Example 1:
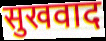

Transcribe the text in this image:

सुखवाद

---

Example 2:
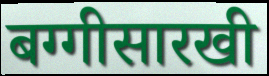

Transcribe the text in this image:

बग्गीसारखी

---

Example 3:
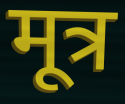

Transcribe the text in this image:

मूत्र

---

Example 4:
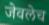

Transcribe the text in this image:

जेवलेच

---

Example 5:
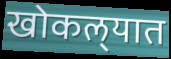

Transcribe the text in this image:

खोकल्यात